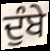
ਦੁੰਬੇ